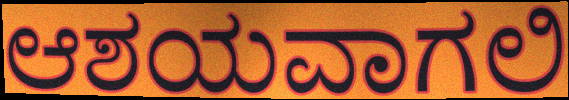
ಆಶಯವಾಗಲಿ